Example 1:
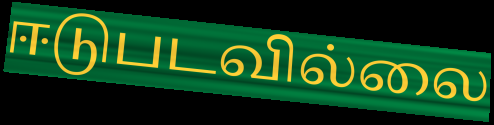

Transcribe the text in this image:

ஈடுபடவில்லை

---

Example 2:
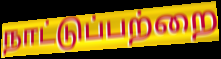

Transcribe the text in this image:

நாட்டுப்பற்றை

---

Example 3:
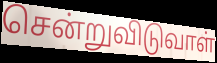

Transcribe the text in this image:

சென்றுவிடுவாள்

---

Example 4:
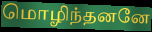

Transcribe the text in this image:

மொழிந்தனனே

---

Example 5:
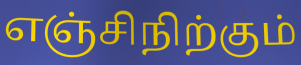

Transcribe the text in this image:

எஞ்சிநிற்கும்